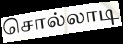
சொல்லாடி